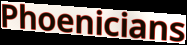
Phoenicians